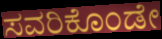
ಸವರಿಕೊಂಡೇ